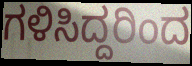
ಗಳಿಸಿದ್ದರಿಂದ